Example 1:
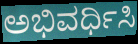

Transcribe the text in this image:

ಅಭಿವರ್ಧಿಸಿ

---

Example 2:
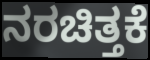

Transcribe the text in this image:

ನರಚಿತ್ತಕೆ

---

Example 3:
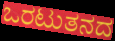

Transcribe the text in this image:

ಒರಟುತನದ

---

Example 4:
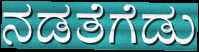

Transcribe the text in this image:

ನಡತೆಗೆಡು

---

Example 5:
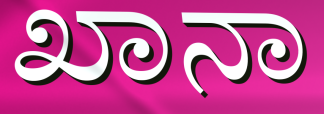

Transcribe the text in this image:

ಖಾನಾ